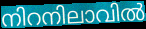
നിറനിലാവിൽ